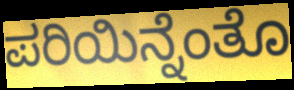
ಪರಿಯಿನ್ನೆಂತೊ